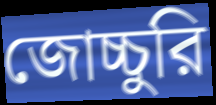
জোচ্চুরি